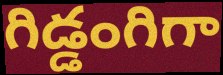
గిడ్డంగిగా